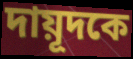
দায়ূদকে